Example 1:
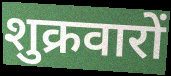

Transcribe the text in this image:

शुक्रवारों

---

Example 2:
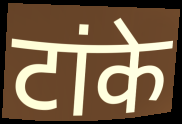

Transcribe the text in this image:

टांके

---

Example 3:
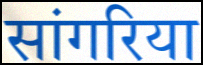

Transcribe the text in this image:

सांगरिया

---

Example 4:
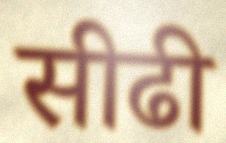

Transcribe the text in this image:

सीढी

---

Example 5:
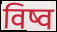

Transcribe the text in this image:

विष्व